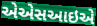
એએસઆઇએ